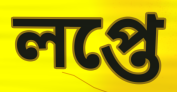
লপ্তে